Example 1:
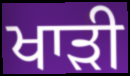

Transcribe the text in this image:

ਖਾਡ਼ੀ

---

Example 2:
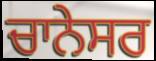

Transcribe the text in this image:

ਚਾਨੇਸਰ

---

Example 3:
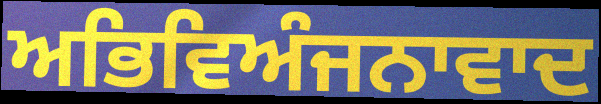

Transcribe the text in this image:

ਅਭਿਵਿਅੰਜਨਾਵਾਦ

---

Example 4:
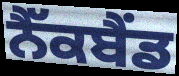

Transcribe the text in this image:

ਨੈੱਕਬੈਂਡ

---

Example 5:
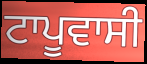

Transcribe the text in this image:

ਟਾਪੂਵਾਸੀ